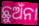
ଛୁଅଁନା